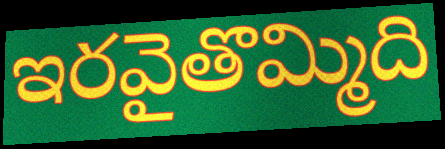
ఇరవైతొమ్మిది